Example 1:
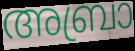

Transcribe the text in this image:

അബ്രാ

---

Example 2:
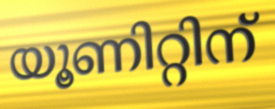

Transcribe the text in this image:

യൂണിറ്റിന്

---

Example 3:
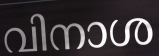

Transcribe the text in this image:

വിനാശ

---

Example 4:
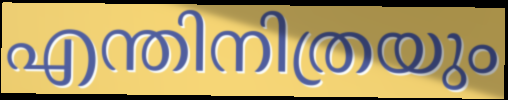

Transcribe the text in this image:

എന്തിനിത്രയും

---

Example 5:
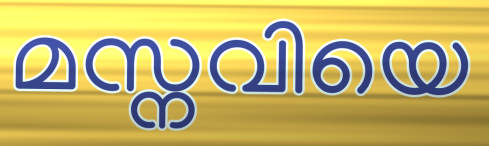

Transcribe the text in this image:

മസ്നവിയെ